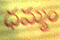
ధమ్మం